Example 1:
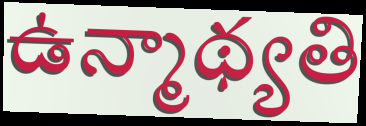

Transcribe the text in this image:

ఉన్మాథ్యతి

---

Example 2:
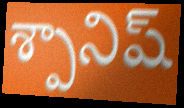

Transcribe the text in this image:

శ్పానిష్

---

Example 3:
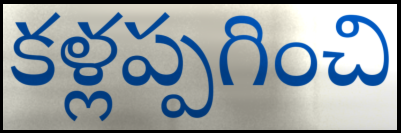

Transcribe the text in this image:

కళ్లప్పగించి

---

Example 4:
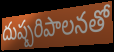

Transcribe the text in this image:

దుష్పరిపాలనతో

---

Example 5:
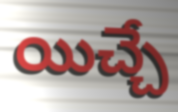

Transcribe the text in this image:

యిచ్చే